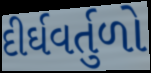
દીર્ઘવર્તુળો